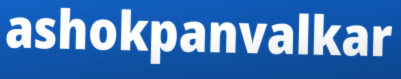
ashokpanvalkar